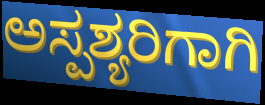
ಅಸ್ಪಶ್ಯರಿಗಾಗಿ